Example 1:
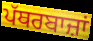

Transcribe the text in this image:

ਪੱਥਰਬਾਜ਼ਾਂ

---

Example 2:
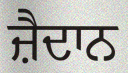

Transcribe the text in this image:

ਜ਼ੈਦਾਨ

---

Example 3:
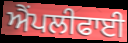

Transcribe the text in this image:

ਐਂਪਲੀਫਾਈ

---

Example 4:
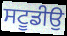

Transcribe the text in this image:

ਸਟੂਡੀਉ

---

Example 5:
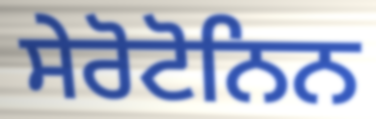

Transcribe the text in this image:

ਸੇਰੋਟੋਨਿਨ